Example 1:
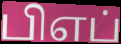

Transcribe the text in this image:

பிஎப்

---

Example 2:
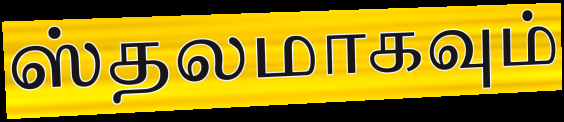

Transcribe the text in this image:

ஸ்தலமாகவும்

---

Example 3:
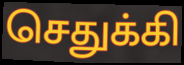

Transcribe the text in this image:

செதுக்கி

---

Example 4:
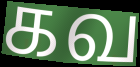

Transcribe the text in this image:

கவ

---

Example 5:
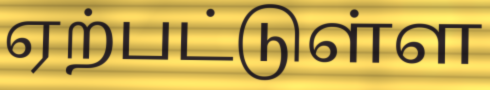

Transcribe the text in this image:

ஏற்பட்டுள்ள